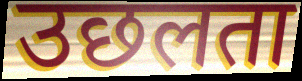
उछलता